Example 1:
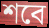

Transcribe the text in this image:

শবে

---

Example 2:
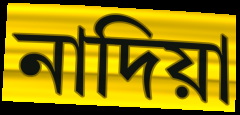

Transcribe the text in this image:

নাদিয়া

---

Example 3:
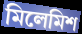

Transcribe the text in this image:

মিলেমিশ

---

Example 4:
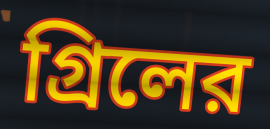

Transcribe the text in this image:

গ্রিলের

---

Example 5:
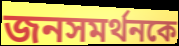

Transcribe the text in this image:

জনসমর্থনকে